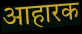
आहारक